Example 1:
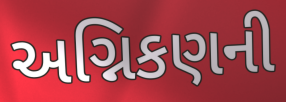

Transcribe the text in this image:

અગ્નિકણની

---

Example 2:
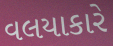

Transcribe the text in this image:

વલયાકારે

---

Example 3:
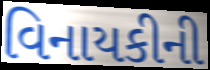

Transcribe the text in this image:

વિનાયકીની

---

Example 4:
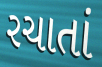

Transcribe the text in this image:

રચાતાં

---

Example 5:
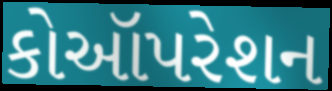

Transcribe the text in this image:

કોઑપરેશન